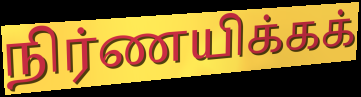
நிர்ணயிக்கக்